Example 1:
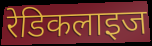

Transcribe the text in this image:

रेडिकलाइज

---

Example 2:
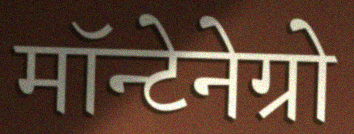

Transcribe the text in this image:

मॉन्टेनेग्रो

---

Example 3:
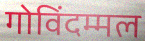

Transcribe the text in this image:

गोविंदम्मल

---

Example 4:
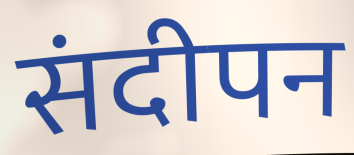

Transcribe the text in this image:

संदीपन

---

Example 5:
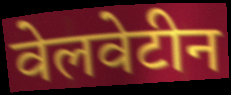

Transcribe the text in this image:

वेलवेटीन